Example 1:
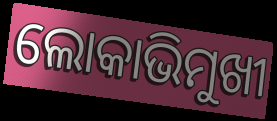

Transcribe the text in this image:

ଲୋକାଭିମୁଖୀ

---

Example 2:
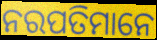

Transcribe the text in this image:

ନରପତିମାନେ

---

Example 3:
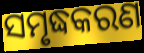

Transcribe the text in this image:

ସମୃଦ୍ଧକରଣ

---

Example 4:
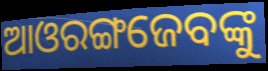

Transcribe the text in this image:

ଆଓରଙ୍ଗଜେବଙ୍କୁ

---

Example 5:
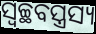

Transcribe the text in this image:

ସ୍ଵଚ୍ଛବସ୍ତ୍ରସ୍ୟ